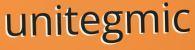
unitegmic